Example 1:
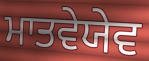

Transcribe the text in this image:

ਮਾਤਵੇਯੇਵ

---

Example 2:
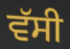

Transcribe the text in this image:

ਵੱਸੀ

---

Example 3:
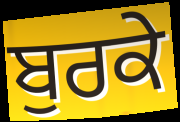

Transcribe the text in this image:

ਬੁਰਕੇ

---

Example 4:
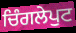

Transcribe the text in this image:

ਚਿੰਗਲੇਪੁਟ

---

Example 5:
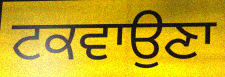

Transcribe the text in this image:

ਟਕਵਾਉਣਾ